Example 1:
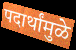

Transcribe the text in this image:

पदार्थांमुळे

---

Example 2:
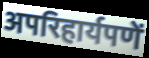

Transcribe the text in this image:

अपरिहार्यपणें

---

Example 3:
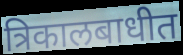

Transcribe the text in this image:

त्रिकालबाधीत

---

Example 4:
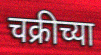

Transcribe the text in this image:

चक्रीच्या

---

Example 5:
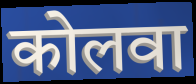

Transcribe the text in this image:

कोलवा